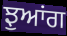
ਝੁਆਂਗ